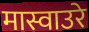
मास्वाउरे